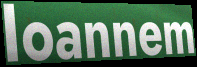
Ioannem